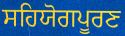
ਸਹਿਯੋਗਪੂਰਣ